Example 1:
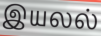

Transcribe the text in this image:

இயலல்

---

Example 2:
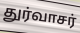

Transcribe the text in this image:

துர்வாசர்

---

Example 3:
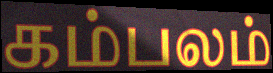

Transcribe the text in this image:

கம்பலம்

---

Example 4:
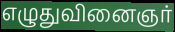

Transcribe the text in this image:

எழுதுவினைஞர்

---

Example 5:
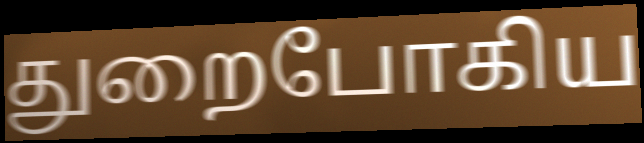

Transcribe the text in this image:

துறைபோகிய